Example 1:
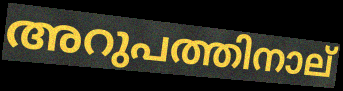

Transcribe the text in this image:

അറുപത്തിനാല്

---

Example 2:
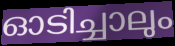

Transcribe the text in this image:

ഓടിച്ചാലും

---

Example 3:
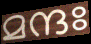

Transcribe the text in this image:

മന്ദഃ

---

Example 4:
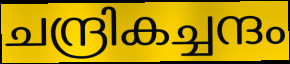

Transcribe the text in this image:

ചന്ദ്രികച്ചന്ദം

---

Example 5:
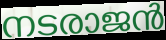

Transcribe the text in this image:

നടരാജൻ